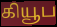
கியூப